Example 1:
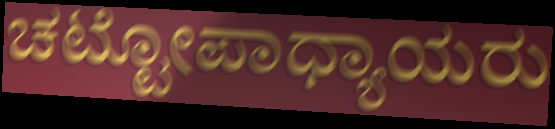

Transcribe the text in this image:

ಚಟ್ಟೋಪಾಧ್ಯಾಯರು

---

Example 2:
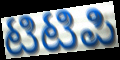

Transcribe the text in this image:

ಟಿಟಿಪಿ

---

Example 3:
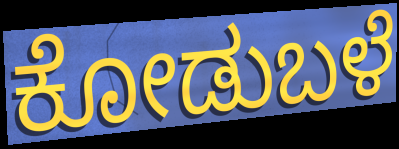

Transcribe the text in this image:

ಕೋಡುಬಳೆ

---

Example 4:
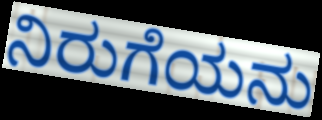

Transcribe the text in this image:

ನಿರುಗೆಯನು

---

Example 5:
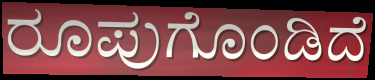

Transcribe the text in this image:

ರೂಪುಗೊಂಡಿದೆ